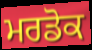
ਮਰਡੋਕ